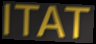
ITAT